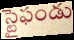
స్టైఫండు